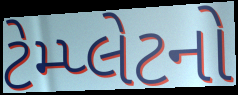
ટેમ્પ્લેટનો